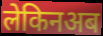
लेकिनअब